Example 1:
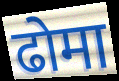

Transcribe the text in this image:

ढोमा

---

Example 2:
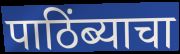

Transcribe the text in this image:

पाठिंब्याचा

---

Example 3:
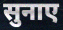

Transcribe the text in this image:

सुनाए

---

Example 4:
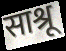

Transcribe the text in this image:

साश्रू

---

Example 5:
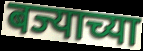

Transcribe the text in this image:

बज्याच्या